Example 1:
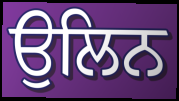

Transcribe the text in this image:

ਉਲਿਨ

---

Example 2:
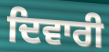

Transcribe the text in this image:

ਦਿਵਾਰੀ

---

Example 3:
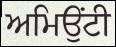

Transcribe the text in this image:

ਅਮਿਉਂਟੀ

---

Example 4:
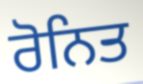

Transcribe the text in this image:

ਰੋਨਿਤ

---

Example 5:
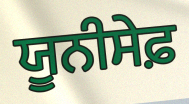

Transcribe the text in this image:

ਯੂਨੀਸੇਫ਼